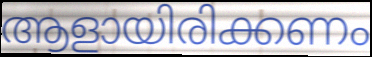
ആളായിരിക്കണം